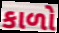
કાળો